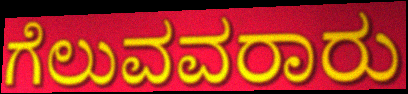
ಗೆಲುವವರಾರು